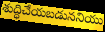
శుద్ధిచేయబడుననియు